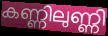
കണ്ണിലുണ്ണി